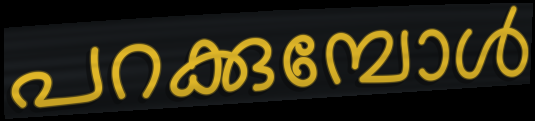
പറക്കുമ്പോൾ